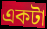
একটা